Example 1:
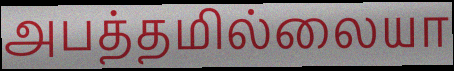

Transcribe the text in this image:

அபத்தமில்லையா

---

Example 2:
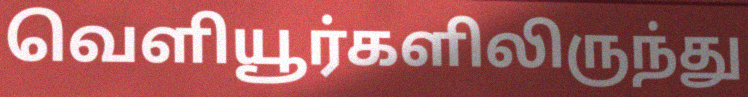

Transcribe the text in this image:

வெளியூர்களிலிருந்து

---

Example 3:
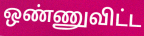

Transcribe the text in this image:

ஒண்ணுவிட்ட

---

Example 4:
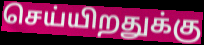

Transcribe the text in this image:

செய்யிறதுக்கு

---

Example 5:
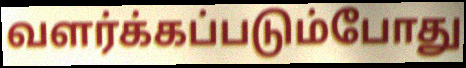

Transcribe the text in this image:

வளர்க்கப்படும்போது